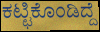
ಕಟ್ಟಿಕೊಂಡಿದ್ದೆ